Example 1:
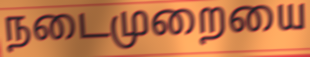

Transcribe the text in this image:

நடைமுறையை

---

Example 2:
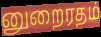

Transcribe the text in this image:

னுறைரதம்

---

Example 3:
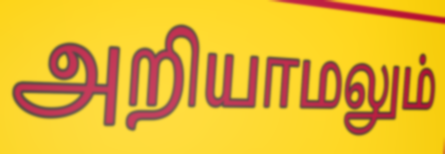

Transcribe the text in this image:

அறியாமலும்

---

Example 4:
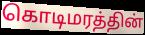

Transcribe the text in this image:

கொடிமரத்தின்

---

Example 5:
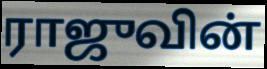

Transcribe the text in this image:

ராஜுவின்